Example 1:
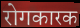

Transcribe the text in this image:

रोगकारक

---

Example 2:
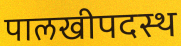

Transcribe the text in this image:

पालखीपदस्थ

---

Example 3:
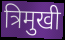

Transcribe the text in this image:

त्रिमुखी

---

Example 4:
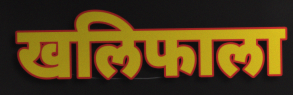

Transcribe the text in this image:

खलिफाला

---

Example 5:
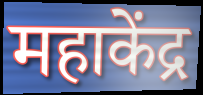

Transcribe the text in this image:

महाकेंद्र